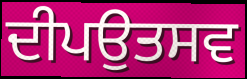
ਦੀਪਉਤਸਵ